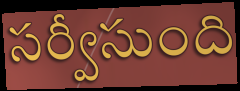
సర్వీసుంది